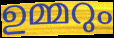
ഉമ്മറും